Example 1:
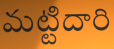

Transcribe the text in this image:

మట్టిదారి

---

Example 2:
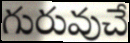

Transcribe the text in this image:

గురువుచే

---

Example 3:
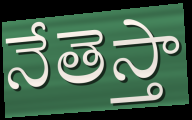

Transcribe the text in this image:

నేతెస్తా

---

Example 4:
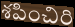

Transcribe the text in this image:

శపించిరి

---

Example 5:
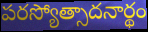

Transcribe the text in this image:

పరస్యోత్సాదనార్థం